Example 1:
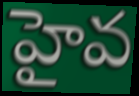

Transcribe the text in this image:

హైవ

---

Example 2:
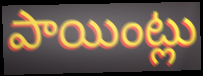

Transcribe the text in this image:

పాయింట్లు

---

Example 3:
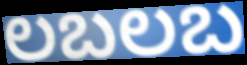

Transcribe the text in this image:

లబలబ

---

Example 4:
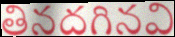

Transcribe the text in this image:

తినదగినవి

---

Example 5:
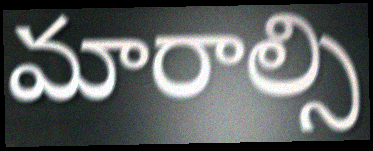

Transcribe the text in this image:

మారాల్సి